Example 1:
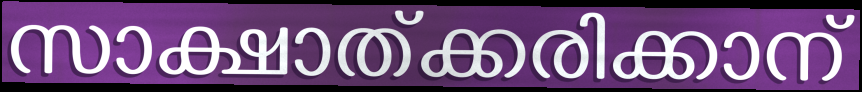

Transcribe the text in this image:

സാക്ഷാത്ക്കരിക്കാന്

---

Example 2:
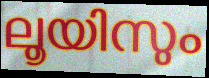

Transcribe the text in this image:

ലൂയിസും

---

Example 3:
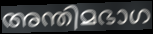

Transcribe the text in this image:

അന്തിമഭാഗ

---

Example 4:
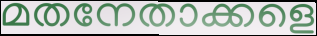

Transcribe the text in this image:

മതനേതാക്കളെ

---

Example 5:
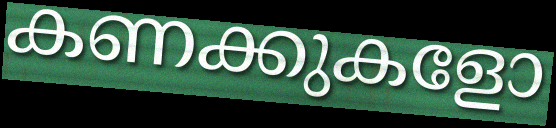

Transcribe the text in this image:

കണക്കുകളോ